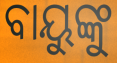
ବାୟୁଙ୍କୁ